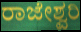
ರಾಜೇಶ್ವರಿ